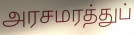
அரசமரத்துப்